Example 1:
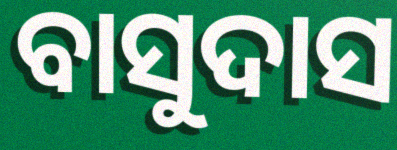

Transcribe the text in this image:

ବାସୁଦାସ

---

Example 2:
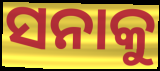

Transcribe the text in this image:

ସନାକୁ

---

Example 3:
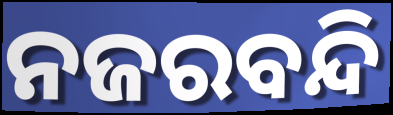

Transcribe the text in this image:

ନଜରବନ୍ଦି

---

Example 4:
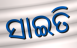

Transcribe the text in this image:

ସାଇତି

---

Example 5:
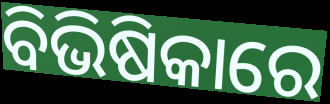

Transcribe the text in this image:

ବିଭିଷିକାରେ